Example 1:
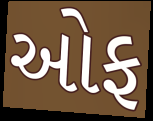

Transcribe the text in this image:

ઓફ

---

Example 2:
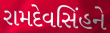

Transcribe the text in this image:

રામદેવસિંહને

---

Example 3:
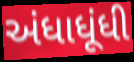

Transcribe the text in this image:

અંધાધૂંધી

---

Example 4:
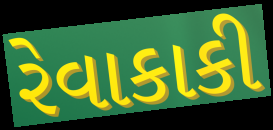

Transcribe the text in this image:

રેવાકાકી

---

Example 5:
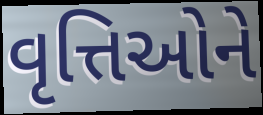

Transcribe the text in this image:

વૃત્તિઓને